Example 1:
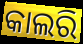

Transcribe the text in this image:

କାଲରି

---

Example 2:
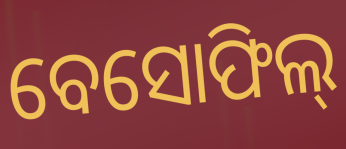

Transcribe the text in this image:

ବେସୋଫିଲ୍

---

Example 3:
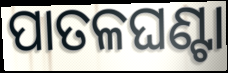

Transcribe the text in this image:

ପାତଳଘଣ୍ଟା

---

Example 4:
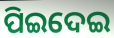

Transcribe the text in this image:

ପିଇଦେଇ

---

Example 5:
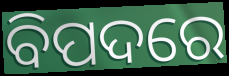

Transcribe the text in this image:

ବିପଦରେ